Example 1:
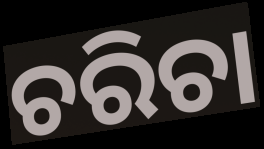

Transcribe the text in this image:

ଚରିଚା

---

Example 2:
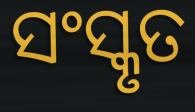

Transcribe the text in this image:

ସଂସ୍କୃତ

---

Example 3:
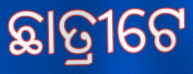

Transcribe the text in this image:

ଛାତ୍ରୀଟେ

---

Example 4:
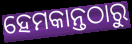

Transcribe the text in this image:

ହେମକାନ୍ତଠାରୁ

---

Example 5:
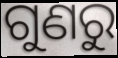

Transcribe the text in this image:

ଗୁଣରୁ